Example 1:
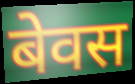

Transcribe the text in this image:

बेवस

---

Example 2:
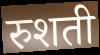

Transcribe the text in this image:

रुशती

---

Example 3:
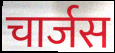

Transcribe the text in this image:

चार्जस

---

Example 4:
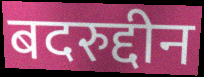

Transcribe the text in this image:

बदरुद्दीन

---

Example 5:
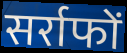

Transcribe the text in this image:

सर्राफों